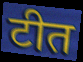
टीत